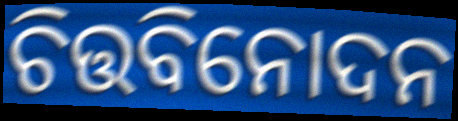
ଚିତ୍ତବିନୋଦନ